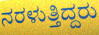
ನರಳುತ್ತಿದ್ದರು